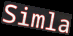
Simla